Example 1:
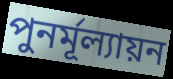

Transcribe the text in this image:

পুনর্মূল্যায়ন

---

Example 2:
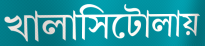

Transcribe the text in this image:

খালাসিটোলায়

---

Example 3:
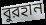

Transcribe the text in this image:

বুরহান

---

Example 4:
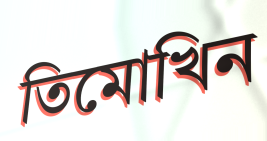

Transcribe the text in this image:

তিমোখিন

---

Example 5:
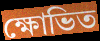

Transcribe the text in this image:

ক্ষোভিত